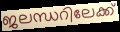
ജലന്ധറിലേക്ക്